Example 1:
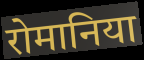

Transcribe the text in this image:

रोमानिया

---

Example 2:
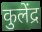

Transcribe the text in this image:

कुलेंद्र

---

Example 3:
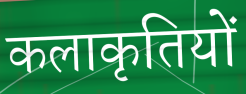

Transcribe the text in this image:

कलाकृतियों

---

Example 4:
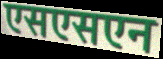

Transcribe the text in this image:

एसएसएन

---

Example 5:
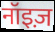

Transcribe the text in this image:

नॉइज़